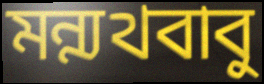
মন্মথবাবু